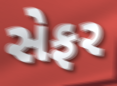
સેફર